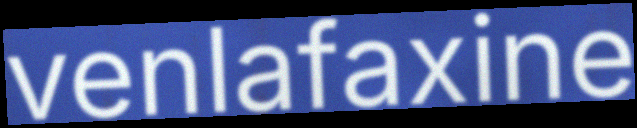
venlafaxine